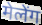
मेलेंग